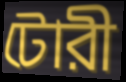
টোরী